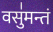
वसु॑मन्तं